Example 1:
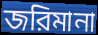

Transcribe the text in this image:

জরিমানা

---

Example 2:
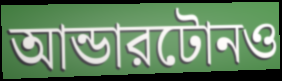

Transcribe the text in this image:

আন্ডারটোনও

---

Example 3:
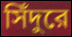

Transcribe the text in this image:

সিঁদুরে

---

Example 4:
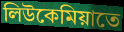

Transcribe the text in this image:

লিউকেমিয়াতে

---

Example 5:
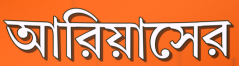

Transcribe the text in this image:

আরিয়াসের